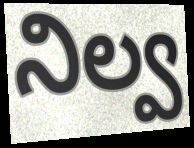
నిల్వ